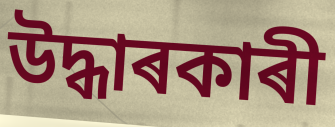
উদ্ধাৰকাৰী